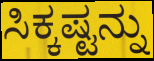
ಸಿಕ್ಕಷ್ಟನ್ನು